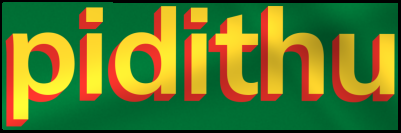
pidithu